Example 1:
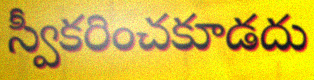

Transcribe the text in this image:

స్వీకరించకూడదు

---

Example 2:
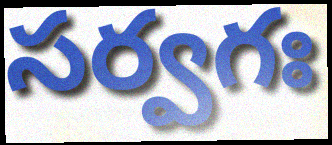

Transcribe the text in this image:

సర్వగః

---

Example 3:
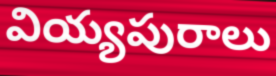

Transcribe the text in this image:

వియ్యపురాలు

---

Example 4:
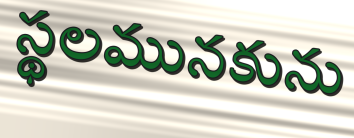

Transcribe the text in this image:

స్థలమునకును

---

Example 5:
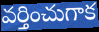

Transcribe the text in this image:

వర్తించుగాక